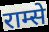
राम्से